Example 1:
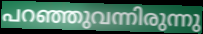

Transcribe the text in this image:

പറഞ്ഞുവന്നിരുന്നു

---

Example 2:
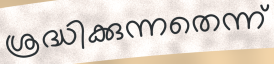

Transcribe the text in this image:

ശ്രദ്ധിക്കുന്നതെന്ന്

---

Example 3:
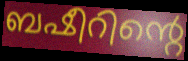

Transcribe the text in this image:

ബഷീറിന്റെ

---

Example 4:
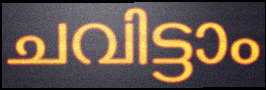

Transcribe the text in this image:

ചവിട്ടാം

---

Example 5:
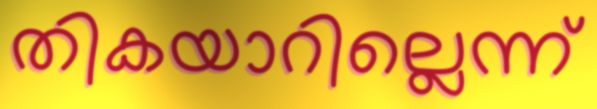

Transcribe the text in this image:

തികയാറില്ലെന്ന്